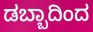
ಡಬ್ಬಾದಿಂದ